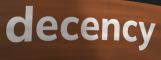
decency